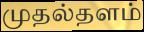
முதல்தளம்